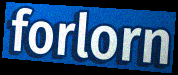
forlorn